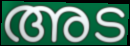
അട